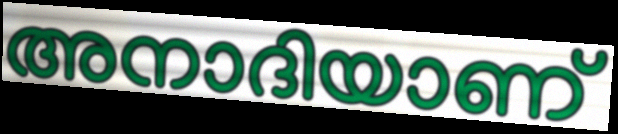
അനാദിയാണ്